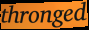
thronged